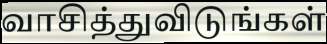
வாசித்துவிடுங்கள்